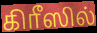
கிரீஸில்